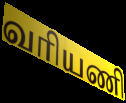
வரியணி